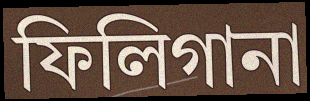
ফিলিগানা